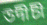
উদীচী